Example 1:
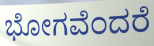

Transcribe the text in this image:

ಭೋಗವೆಂದರೆ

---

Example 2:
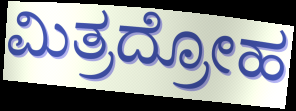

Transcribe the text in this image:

ಮಿತ್ರದ್ರೋಹ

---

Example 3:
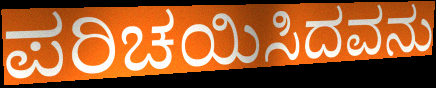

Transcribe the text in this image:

ಪರಿಚಯಿಸಿದವನು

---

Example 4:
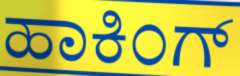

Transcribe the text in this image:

ಹಾಕಿಂಗ್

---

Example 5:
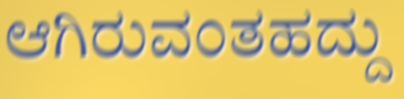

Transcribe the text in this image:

ಆಗಿರುವಂತಹದ್ದು